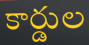
కార్డుల